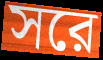
সরে